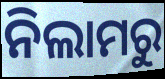
ନିଲାମରୁ